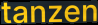
tanzen